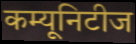
कम्यूनिटीज